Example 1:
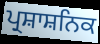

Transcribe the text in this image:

ਪ੍ਰਸ਼ਾਸ਼ਨਿਕ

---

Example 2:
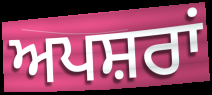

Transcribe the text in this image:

ਅਪਸ਼ਰਾਂ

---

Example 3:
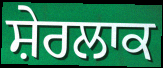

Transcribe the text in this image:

ਸ਼ੇਰਲਾਕ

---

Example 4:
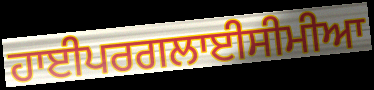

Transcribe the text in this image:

ਹਾਈਪਰਗਲਾਈਸੀਮੀਆ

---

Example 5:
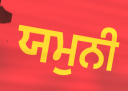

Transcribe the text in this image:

ਯਮੁਨੀ